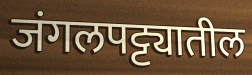
जंगलपट्ट्यातील